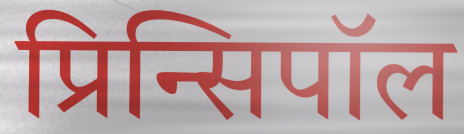
प्रिन्सिपॉल